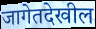
जागेतदेखील